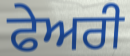
ਫੇਅਰੀ